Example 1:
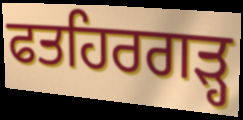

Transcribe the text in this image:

ਫਤਹਿਰਗੜ੍ਹ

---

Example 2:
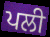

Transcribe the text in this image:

ਪਲੀ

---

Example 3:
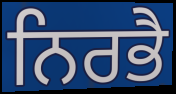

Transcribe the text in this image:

ਨਿਰਭੈ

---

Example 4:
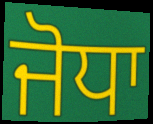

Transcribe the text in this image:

ਜੋਧਾ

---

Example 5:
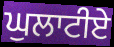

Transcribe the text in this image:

ਘੁਲਾਟੀਏ